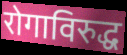
रोगाविरुद्ध